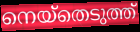
നെയ്തെടുത്ത്